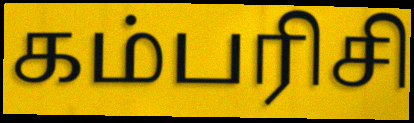
கம்பரிசி